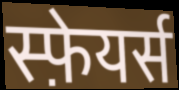
स्फ़ेयर्स